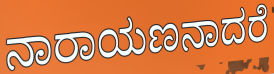
ನಾರಾಯಣನಾದರೆ